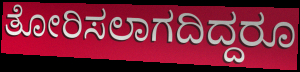
ತೋರಿಸಲಾಗದಿದ್ದರೂ